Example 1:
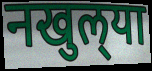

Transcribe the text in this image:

नखुल्या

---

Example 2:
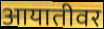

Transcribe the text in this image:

आयातीवर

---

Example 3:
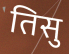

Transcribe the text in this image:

तिसु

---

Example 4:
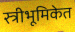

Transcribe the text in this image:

स्त्रीभूमिकेत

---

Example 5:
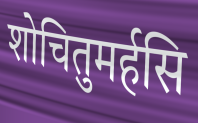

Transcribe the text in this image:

शोचितुमर्हसि